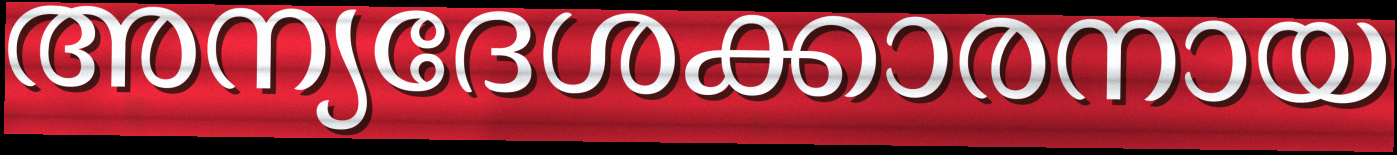
അന്യദേശക്കാരനായ